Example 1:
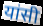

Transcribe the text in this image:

यांसी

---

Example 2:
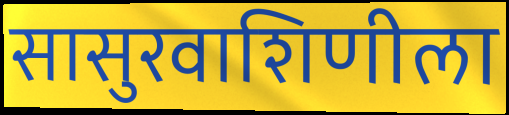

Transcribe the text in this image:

सासुरवाशिणीला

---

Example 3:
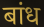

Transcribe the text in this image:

बांध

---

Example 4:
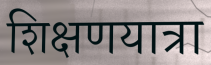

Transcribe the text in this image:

शिक्षणयात्रा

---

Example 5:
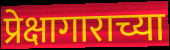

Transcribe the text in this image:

प्रेक्षागाराच्या